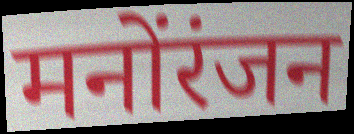
मनोंरंजन